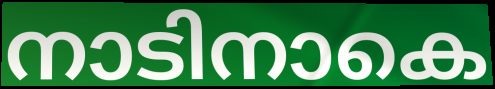
നാടിനാകെ